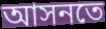
আসনতে